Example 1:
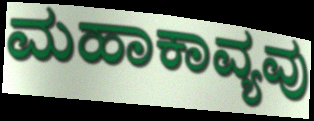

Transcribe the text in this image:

ಮಹಾಕಾವ್ಯವು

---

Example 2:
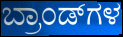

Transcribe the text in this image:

ಬ್ರಾಂಡ್‌ಗಳ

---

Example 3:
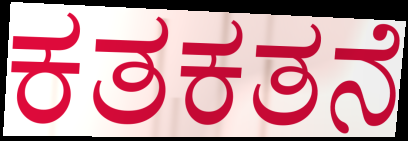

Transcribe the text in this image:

ಕತಕತನೆ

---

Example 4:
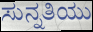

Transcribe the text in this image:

ಸುನ್ನತಿಯು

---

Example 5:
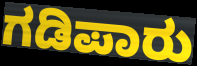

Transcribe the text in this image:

ಗಡಿಪಾರು